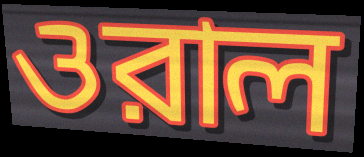
ওরাল